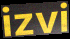
izvi